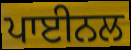
ਪਾਈਨਲ